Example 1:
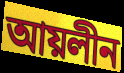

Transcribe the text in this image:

আয়লীন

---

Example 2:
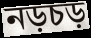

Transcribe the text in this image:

নড়চড়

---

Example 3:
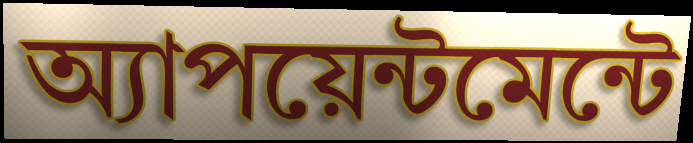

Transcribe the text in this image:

অ্যাপয়েন্টমেন্টে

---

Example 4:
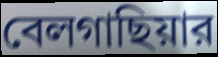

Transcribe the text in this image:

বেলগাছিয়ার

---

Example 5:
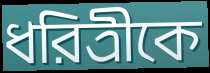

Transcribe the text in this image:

ধরিত্রীকে